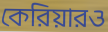
কেরিয়ারও